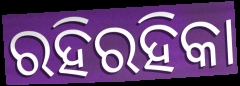
ରହିରହିକା